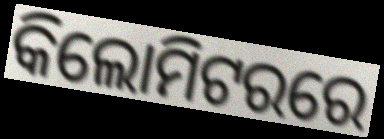
କିଲୋମିଟରରେ